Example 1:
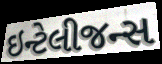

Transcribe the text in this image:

ઇન્ટેલીજન્સ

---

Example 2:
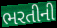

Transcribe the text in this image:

ભરતીની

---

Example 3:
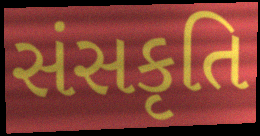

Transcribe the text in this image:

સંસકૃતિ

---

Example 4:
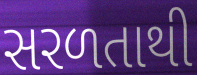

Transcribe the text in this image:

સરળતાથી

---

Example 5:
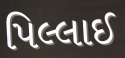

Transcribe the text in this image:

પિલ્લાઈ